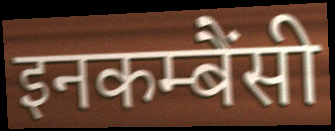
इनकम्बैंसी